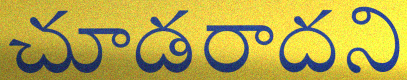
చూడరాదని